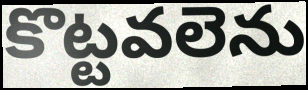
కొట్టవలెను